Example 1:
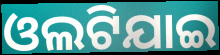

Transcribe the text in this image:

ଓଲଟିଯାଇ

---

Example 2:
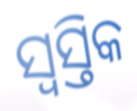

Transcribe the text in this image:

ସ୍ୱସ୍ତିକ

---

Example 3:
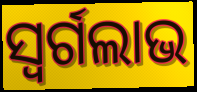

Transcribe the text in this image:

ସ୍ୱର୍ଗଲାଭ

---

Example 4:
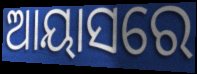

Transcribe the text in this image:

ଆୟାସରେ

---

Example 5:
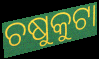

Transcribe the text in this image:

ଚଷୁକୁଟା